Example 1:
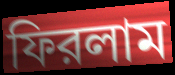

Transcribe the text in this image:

ফিরলাম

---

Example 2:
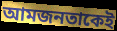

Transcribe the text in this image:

আমজনতাকেই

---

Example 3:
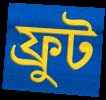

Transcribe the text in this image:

ফ্রুট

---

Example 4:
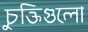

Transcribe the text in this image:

চুক্তিগুলো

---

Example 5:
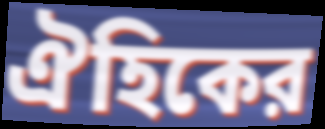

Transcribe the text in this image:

ঐহিকের